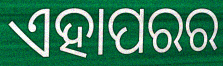
ଏହାପରର